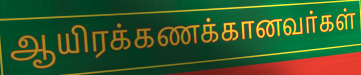
ஆயிரக்கணக்கானவர்கள்